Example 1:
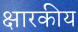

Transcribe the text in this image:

क्षारकीय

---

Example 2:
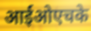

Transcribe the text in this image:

आईओएचके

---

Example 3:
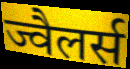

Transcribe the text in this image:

ज्वैलर्स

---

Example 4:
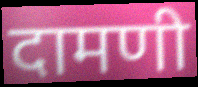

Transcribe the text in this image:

दामणी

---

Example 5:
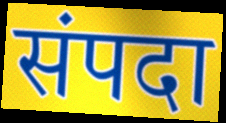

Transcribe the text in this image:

संपदा